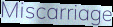
Miscarriage